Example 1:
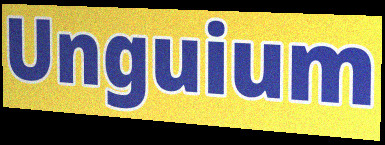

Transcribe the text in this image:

Unguium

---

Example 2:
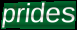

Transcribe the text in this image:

prides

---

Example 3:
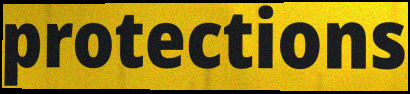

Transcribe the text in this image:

protections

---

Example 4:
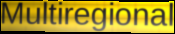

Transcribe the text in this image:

Multiregional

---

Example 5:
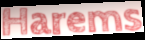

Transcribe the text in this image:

Harems